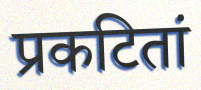
प्रकटितां